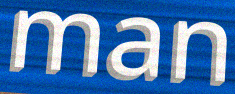
man